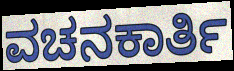
ವಚನಕಾರ್ತಿ